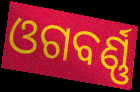
ଓଗବର୍ଣ୍ଣ